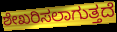
ಶೇಖರಿಸಲಾಗುತ್ತದೆ